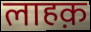
लाहक़